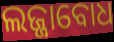
ଲଜ୍ଜାବୋଧ